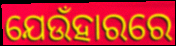
ଯେଉଁହାରରେ